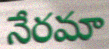
నేరమా